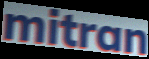
mitran